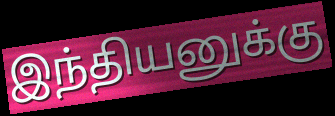
இந்தியனுக்கு